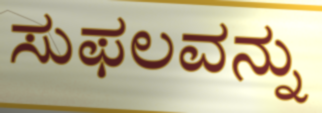
ಸುಫಲವನ್ನು